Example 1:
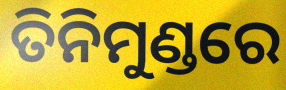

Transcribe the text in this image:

ତିନିମୁଣ୍ଡରେ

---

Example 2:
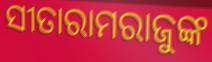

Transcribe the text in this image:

ସୀତାରାମରାଜୁଙ୍କ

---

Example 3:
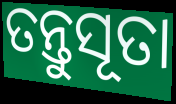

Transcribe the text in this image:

ତନ୍ତୁସୂତା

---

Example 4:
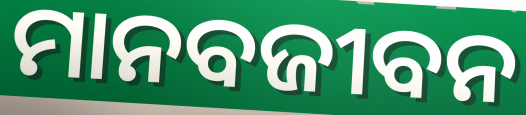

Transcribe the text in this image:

ମାନବଜୀବନ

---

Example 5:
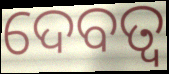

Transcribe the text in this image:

ଦେବତ୍ୱ